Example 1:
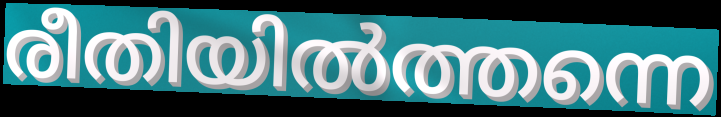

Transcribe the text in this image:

രീതിയിൽത്തന്നെ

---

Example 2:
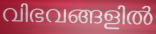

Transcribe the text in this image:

വിഭവങ്ങളിൽ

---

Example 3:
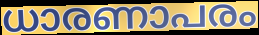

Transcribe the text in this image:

ധാരണാപരം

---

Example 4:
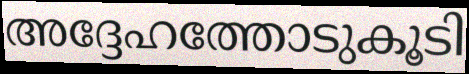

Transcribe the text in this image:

അദ്ദേഹത്തോടുകൂടി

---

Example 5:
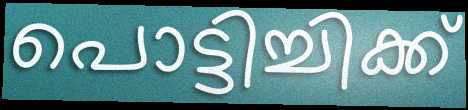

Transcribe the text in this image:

പൊട്ടിച്ചിക്ക്